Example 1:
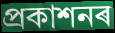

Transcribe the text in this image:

প্ৰকাশনৰ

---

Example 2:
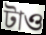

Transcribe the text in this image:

টাও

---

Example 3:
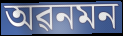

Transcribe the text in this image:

অৱনমন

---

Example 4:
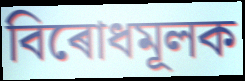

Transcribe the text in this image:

বিৰোধমূলক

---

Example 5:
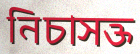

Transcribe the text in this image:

নিচাসক্ত